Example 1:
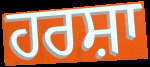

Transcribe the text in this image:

ਹਰਸ਼ਾ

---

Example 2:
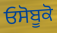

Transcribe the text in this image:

ਓਸੋਬੂਕੋ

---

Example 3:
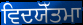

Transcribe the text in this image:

ਵਿਦਯੋੱਤਮਾ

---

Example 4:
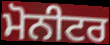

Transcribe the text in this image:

ਮੋਨੀਟਰ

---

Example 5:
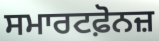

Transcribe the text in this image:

ਸਮਾਰਟਫ਼ੋਨਜ਼